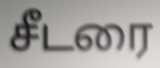
சீடரை